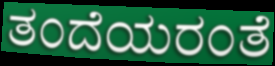
ತಂದೆಯರಂತೆ